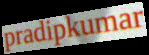
pradipkumar